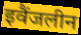
इवैंजलीन